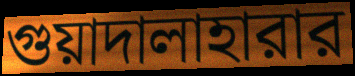
গুয়াদালাহারার